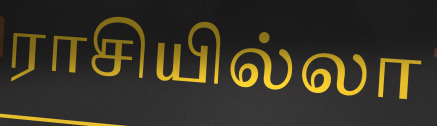
ராசியில்லா